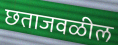
छताजवळील